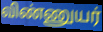
விண்ணுயர்